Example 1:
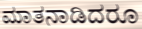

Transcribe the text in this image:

ಮಾತನಾಡಿದರೂ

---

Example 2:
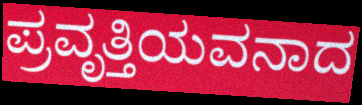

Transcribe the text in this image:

ಪ್ರವೃತ್ತಿಯವನಾದ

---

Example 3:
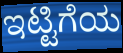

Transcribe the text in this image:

ಇಟ್ಟಿಗೆಯ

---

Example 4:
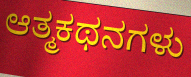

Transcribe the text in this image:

ಆತ್ಮಕಥನಗಳು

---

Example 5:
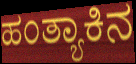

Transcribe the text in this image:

ಹಂತ್ಯಾಕಿನ